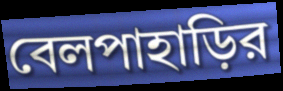
বেলপাহাড়ির